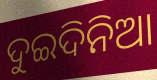
ଦୁଇଦିନିଆ